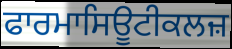
ਫਾਰਮਾਸਿਊਟੀਕਲਜ਼